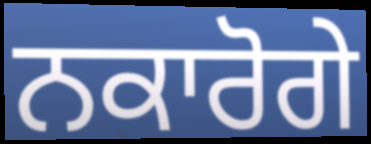
ਨਕਾਰੋਗੇ